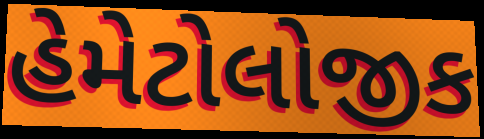
હેમેટોલોજીક